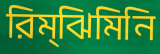
রিম্‌ঝিমিনি